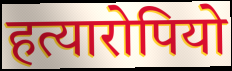
हत्यारोपियो